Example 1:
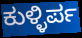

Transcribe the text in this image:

ಕುಳ್ಳಿರ್ಪ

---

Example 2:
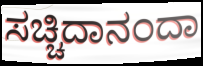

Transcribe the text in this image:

ಸಚ್ಚಿದಾನಂದಾ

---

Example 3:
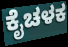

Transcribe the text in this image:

ಕೈಚಳಕ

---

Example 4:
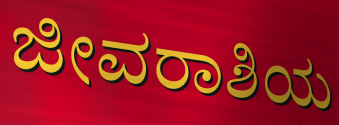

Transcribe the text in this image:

ಜೀವರಾಶಿಯ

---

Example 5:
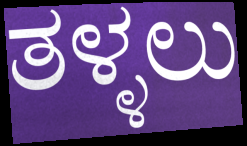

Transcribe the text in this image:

ತಳ್ಳಲು